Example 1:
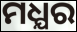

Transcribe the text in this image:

ମଧ୍ଯର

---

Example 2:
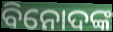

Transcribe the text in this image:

ବିନୋଦଙ୍କ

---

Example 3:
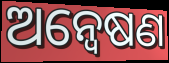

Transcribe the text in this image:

ଅନ୍ବେଷଣ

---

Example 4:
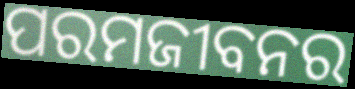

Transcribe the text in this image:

ପରମଜୀବନର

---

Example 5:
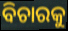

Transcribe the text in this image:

ବିଚାରକୁ